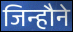
जिन्हौने